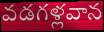
వడగళ్లవాన